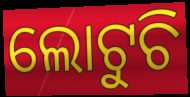
ଲୋଟୁଚି